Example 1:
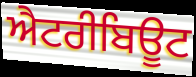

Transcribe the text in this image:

ਐਟਰੀਬਿਊਟ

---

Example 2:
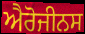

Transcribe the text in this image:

ਐਰੋਜੀਨਸ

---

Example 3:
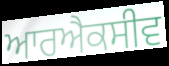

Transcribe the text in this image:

ਆਰਐਕਸੀਵ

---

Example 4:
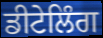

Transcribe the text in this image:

ਡੀਟੇਲਿੰਗ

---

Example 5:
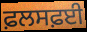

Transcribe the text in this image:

ਫ਼ਲਸਫ਼ਈ